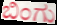
ಬಿಂಗು